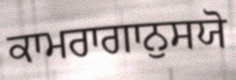
ਕਾਮਰਾਗਾਨੁਸਯੋ